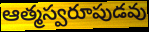
ఆత్మస్వరూపుడవు